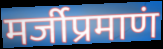
मर्जीप्रमाणं